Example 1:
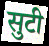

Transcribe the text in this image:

सुटी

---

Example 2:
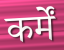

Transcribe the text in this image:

कर्में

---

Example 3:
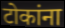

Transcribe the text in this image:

टोकांना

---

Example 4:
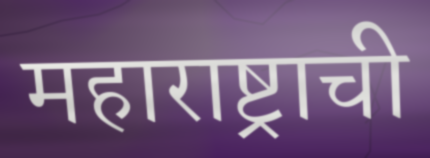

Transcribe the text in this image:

महाराष्ट्राची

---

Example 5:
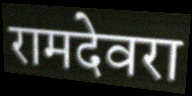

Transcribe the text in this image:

रामदेवरा